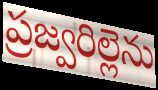
ప్రజ్వరిల్లెను